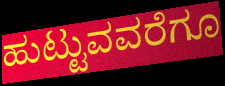
ಹುಟ್ಟುವವರೆಗೂ